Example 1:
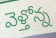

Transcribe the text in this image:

వెళ్తోన్న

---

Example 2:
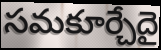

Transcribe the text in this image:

సమకూర్చేదై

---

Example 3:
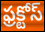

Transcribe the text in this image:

ఫ్రక్టోస్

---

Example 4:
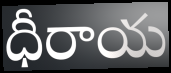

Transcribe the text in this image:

ధీరాయ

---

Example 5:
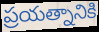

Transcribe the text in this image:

ప్రయత్నానికి